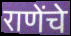
राणेंचे